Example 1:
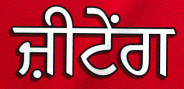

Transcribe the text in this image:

ਜ਼ੀਟੇਂਗ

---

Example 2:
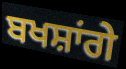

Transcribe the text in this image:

ਬਖਸ਼ਾਂਗੇ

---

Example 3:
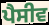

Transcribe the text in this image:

ਪੈਸੀਵ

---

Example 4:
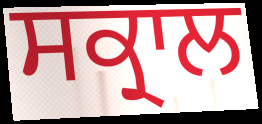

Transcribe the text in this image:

ਸਕ੍ਰਾਲ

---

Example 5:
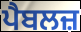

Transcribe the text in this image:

ਪੈਬਲਜ਼